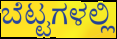
ಬೆಟ್ಟಗಳಲ್ಲಿ